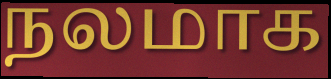
நலமாக